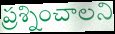
ప్రశ్నించాలని